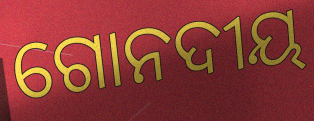
ଗୋନଦୀୟ